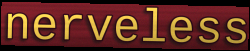
nerveless